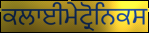
ਕਲਾਈਮੇਟ੍ਰੋਨਿਕਸ